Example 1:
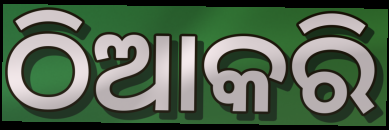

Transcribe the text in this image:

ଠିଆକରି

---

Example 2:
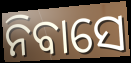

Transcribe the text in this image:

ନିବାସେ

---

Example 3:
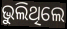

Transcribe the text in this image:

ଭୁଲିଥିଲେ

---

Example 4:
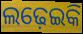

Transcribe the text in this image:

ଲଢ଼େଇକି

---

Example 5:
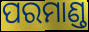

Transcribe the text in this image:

ପରମାଣ୍ଡ